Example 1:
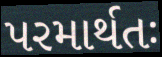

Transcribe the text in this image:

પરમાર્થતઃ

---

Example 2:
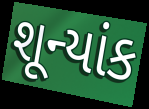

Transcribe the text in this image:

શૂન્યાંક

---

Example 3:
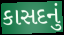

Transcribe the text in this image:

કાસદનું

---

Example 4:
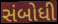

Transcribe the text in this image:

સંબોધી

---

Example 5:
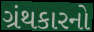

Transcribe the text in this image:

ગ્રંથકારનો